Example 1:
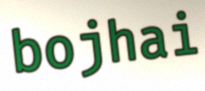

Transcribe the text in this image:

bojhai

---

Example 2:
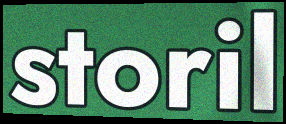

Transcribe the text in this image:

storil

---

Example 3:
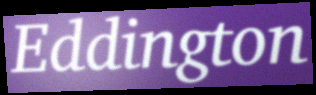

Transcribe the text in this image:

Eddington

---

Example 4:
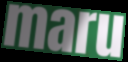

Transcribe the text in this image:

maru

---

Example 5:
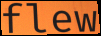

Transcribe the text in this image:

flew